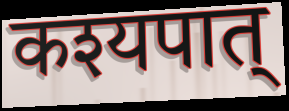
कश्यपात्